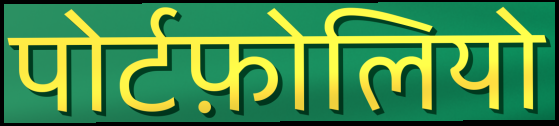
पोर्टफ़ोलियो